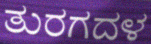
ತುರಗದಳ